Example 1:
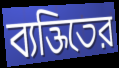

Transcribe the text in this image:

ব্যক্তিতের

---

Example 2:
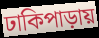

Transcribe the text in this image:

ঢাকিপাড়ায়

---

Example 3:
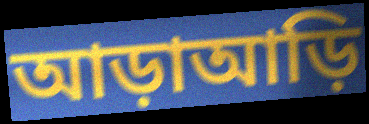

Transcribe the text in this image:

আড়াআড়ি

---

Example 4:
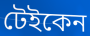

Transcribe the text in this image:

টেইকেন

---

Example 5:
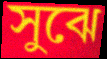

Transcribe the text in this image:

সুঝে